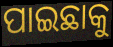
ପାଇଛାକୁ